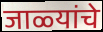
जाळ्यांचे